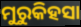
ମୁରୁକିହସା